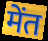
मेंत